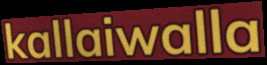
kallaiwalla